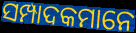
ସମ୍ପାଦକମାନେ